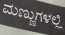
ಮಣ್ಣುಗಳಲ್ಲಿ